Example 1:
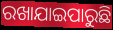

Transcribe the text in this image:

ରଖାଯାଇପାରୁଛି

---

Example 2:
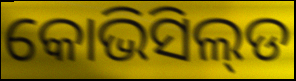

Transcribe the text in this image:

କୋଭିସିଲ୍‌ଡ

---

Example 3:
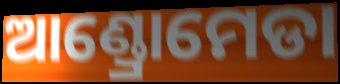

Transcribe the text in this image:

ଆଣ୍ଡ୍ରୋମେଡା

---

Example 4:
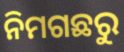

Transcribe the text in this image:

ନିମଗଛରୁ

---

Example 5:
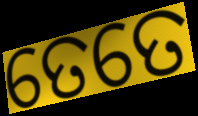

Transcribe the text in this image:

ତେତେ